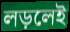
লড়লেই